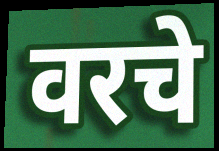
वरचे